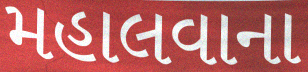
મહાલવાના